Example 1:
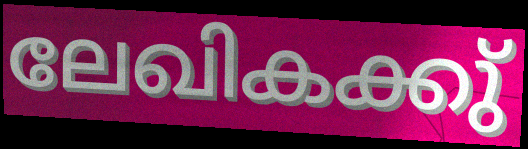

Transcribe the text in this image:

ലേഖികക്കു്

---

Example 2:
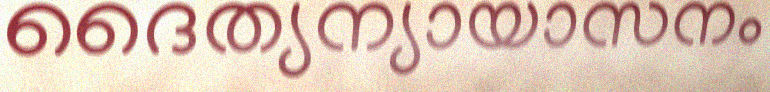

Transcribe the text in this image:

ദൈത്യന്യായാസനം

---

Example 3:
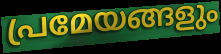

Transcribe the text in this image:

പ്രമേയങ്ങളും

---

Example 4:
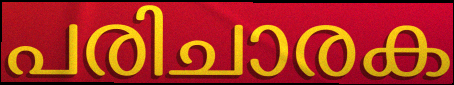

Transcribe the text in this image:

പരിചാരക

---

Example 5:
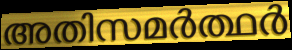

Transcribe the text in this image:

അതിസമർത്ഥർ